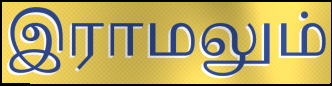
இராமலும்